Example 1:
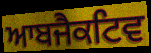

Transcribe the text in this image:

ਆਬਜੈਕਟਿਵ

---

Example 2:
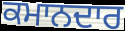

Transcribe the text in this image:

ਕਮਾਨਦਾਰ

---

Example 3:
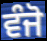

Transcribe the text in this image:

ਵੰਜੋ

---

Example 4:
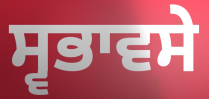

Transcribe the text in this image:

ਸ੍ਵਭਾਵਸੇ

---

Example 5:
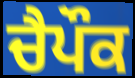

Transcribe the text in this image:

ਚੈਪੌਕ